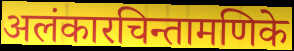
अलंकारचिन्तामणिके